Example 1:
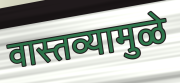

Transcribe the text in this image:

वास्तव्यामुळे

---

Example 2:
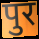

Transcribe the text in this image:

पुर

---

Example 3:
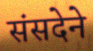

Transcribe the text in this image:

संसदेने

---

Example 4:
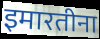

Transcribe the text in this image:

इमारतीना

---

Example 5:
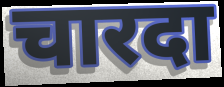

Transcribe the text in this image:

चारदा